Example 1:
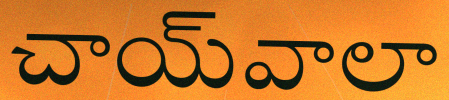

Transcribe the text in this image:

చాయ్‌వాలా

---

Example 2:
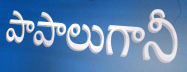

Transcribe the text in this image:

పాపాలుగానీ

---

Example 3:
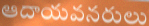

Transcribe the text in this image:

ఆదాయవనరులు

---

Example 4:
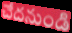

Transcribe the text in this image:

చేదనుండి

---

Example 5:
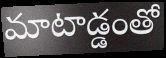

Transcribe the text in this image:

మాటాడ్డంతో